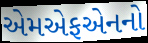
એમએફએનનો